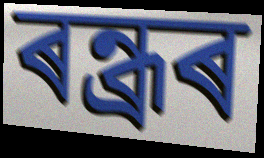
ৰন্ধ্ৰৰ